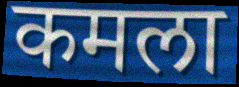
कमला